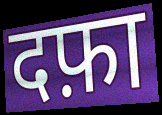
दफ़ा